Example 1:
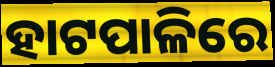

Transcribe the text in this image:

ହାଟପାଳିରେ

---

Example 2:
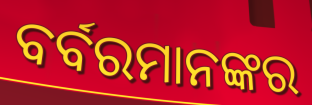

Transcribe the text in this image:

ବର୍ବରମାନଙ୍କର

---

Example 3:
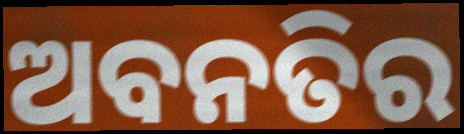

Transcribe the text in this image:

ଅବନତିର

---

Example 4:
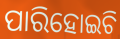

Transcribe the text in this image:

ପାରିହୋଇଚି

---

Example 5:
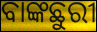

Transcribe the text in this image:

ବାଙ୍କଛୁରୀ